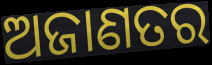
ଅଜାଣତର